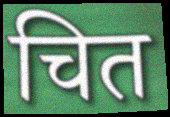
चित